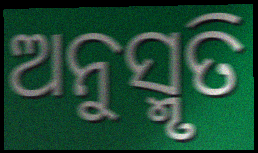
ଅନୁସ୍ମୃତି